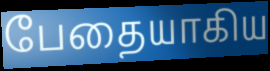
பேதையாகிய